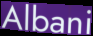
Albani